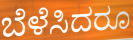
ಬೆಳೆಸಿದರೂ